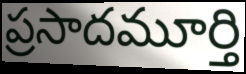
ప్రసాదమూర్తి